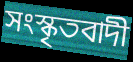
সংস্কৃতবাদী